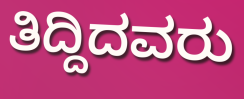
ತಿದ್ದಿದವರು